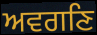
ਅਵਗਣਿ